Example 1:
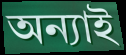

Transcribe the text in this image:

অন্যাই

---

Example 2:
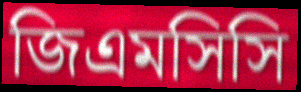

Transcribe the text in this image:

জিএমসিসি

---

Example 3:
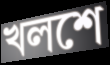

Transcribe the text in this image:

খলশে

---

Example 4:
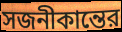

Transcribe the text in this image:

সজনীকান্তের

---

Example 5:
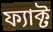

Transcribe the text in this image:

ফ্যাক্ট